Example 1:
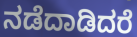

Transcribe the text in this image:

ನಡೆದಾಡಿದರೆ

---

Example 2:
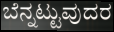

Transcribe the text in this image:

ಬೆನ್ನಟ್ಟುವುದರ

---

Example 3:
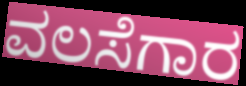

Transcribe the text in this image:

ವಲಸೆಗಾರ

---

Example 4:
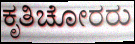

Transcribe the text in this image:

ಕೃತಿಚೋರರು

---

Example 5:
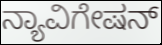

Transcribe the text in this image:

ನ್ಯಾವಿಗೇಷನ್